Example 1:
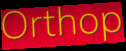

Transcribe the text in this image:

Orthop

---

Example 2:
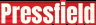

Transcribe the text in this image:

Pressfield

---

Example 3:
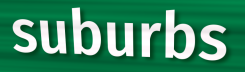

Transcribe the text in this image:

suburbs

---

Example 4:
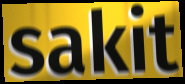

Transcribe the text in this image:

sakit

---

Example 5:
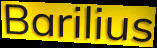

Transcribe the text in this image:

Barilius